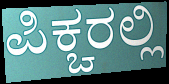
ಪಿಕ್ಚರಲ್ಲಿ